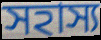
সহাস্য